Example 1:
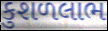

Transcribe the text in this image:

કુશળલાભ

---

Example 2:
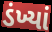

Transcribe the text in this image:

ડંખ્યાં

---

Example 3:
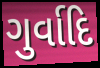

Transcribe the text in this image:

ગુર્વાદિ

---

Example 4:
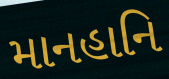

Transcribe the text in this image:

માનહાનિ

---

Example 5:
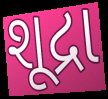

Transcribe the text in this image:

શૂદ્રા